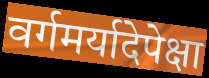
वर्गमर्यादेपेक्षा